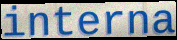
interna